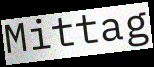
Mittag